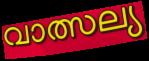
വാത്സല്യ